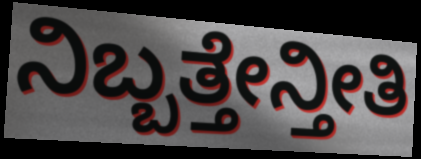
ನಿಬ್ಬತ್ತೇನ್ತೀತಿ